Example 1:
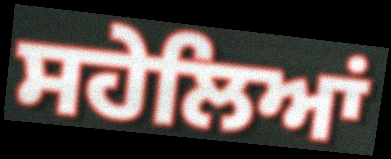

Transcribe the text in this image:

ਸਹੇਲਿਆਂ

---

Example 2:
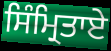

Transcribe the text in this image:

ਸਿੰਮ੍ਰਿਤਾਏ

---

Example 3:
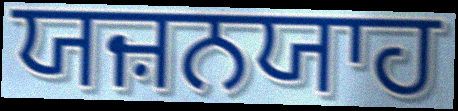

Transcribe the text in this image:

ਯਜ਼ਨਯਾਹ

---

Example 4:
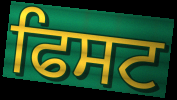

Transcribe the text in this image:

ਫਿਸਟ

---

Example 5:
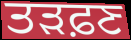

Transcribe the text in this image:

ਤੜਫ਼ਣ